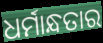
ଧର୍ମାନ୍ଧତାର